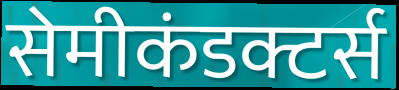
सेमीकंडक्टर्स